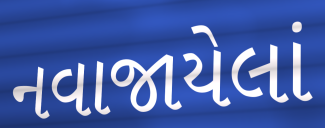
નવાજાયેલાં